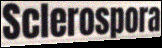
Sclerospora